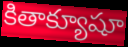
కితాక్యూషూ